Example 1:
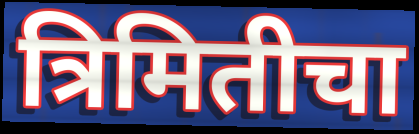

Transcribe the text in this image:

त्रिमितीचा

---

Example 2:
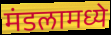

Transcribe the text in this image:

मंडलामध्ये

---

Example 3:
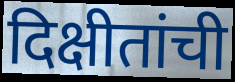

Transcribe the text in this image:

दिक्षीतांची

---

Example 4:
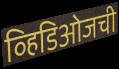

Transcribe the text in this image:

व्हिडिओजची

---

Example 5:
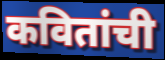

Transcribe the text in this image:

कवितांची